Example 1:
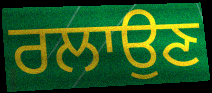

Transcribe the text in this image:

ਰਲਾਉਣ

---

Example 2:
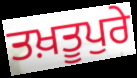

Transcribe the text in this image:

ਤਖ਼ਤੂਪੁਰੇ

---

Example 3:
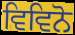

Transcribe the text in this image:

ਵਿਵਿਨੋ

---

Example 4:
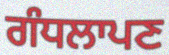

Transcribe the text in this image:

ਗੰਧਲਾਪਣ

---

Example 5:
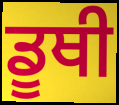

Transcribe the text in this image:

ਡੂਥੀ